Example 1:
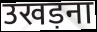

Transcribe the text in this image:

उखड़ना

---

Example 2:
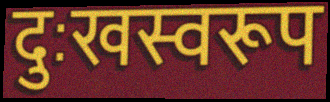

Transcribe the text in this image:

दुःखस्वरूप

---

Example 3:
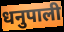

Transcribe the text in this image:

धनुपाली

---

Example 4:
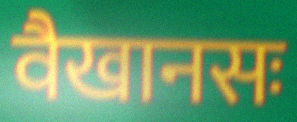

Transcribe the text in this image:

वैखानसः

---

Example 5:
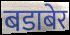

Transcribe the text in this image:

बडाबेर